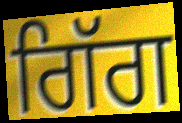
ਗਿੱਗ